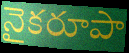
నైకరూపా